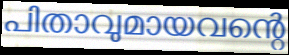
പിതാവുമായവന്റെ